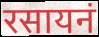
रसायनं